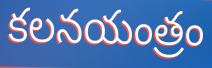
కలనయంత్రం